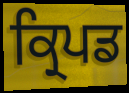
ਕ੍ਰਿਪਡ